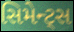
સિમેન્ટ્સ